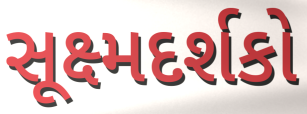
સૂક્ષ્મદર્શકો